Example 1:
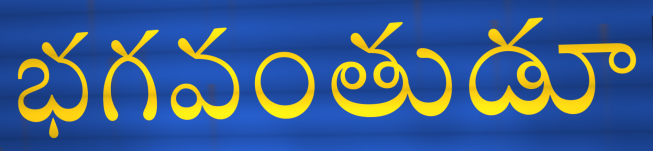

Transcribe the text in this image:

భగవంతుడూ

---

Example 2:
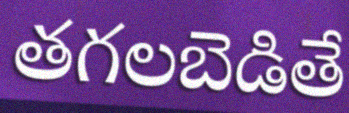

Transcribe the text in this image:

తగలబెడితే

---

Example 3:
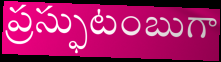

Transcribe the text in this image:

ప్రస్ఫుటంబుగా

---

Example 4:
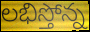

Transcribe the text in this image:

లభిస్తోన్న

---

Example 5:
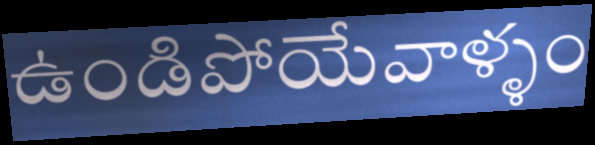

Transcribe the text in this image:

ఉండిపోయేవాళ్ళం